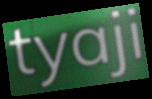
tyaji